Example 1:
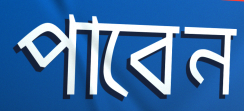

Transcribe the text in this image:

পাবেন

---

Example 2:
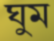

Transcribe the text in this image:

ঘুম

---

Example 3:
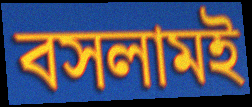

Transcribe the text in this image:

বসলামই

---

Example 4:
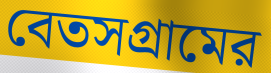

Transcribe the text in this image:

বেতসগ্রামের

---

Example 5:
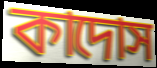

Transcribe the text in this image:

কাদোস